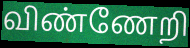
விண்ணேறி